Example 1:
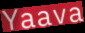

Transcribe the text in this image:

Yaava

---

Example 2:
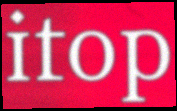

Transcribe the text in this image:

itop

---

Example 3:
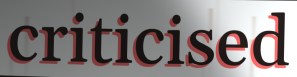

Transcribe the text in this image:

criticised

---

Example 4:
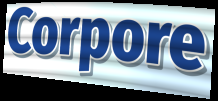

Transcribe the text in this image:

Corpore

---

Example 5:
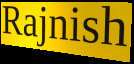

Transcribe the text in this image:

Rajnish